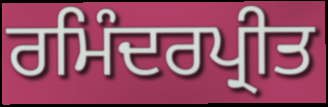
ਰਮਿੰਦਰਪ੍ਰੀਤ